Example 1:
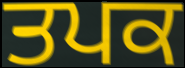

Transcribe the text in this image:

ਤਪਕ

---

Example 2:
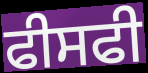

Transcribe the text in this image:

ਫੀਸਫੀ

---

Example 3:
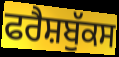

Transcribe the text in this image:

ਫਰੈਸ਼ਬੁੱਕਸ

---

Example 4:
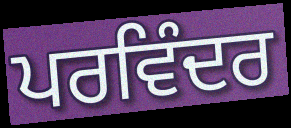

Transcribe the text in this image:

ਪਰਵਿੰਦਰ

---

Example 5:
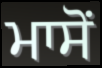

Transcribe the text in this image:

ਮਾਸੋਂ